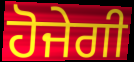
ਹੋਜੇਗੀ